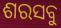
ଶରସବୁ